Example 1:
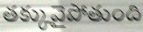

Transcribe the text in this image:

తక్కువైపోతుంది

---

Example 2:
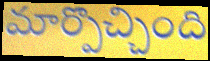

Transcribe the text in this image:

మార్పొచ్చింది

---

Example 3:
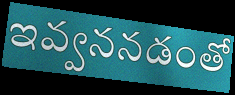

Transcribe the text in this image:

ఇవ్వననడంతో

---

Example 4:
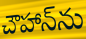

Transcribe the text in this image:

చౌహాన్‌ను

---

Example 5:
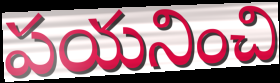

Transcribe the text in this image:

పయనించి